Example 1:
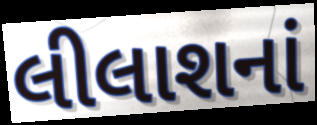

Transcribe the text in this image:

લીલાશનાં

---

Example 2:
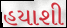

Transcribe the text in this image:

હયાશી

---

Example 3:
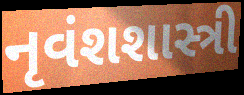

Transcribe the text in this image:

નૃવંશશાસ્ત્રી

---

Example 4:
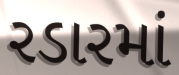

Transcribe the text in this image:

રડારમાં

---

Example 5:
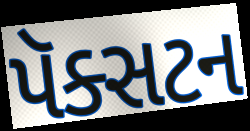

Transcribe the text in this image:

પૅક્સટન